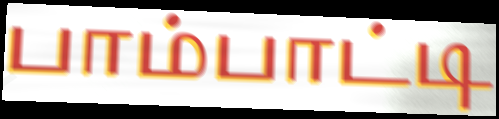
பாம்பாட்டி